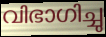
വിഭാഗിച്ചു